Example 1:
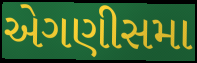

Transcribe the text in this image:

એગણીસમા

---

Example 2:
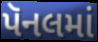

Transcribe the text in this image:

પૅનલમાં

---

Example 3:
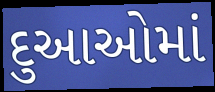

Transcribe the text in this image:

દુઆઓમાં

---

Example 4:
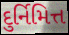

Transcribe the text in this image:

દુર્નિમિત્ત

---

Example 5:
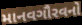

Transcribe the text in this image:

માનવગૌરવનો